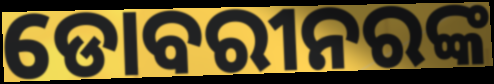
ଡୋବରୀନରଙ୍କ